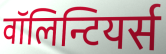
वॉलिन्टियर्स